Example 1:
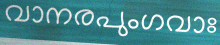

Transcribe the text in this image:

വാനരപുംഗവാഃ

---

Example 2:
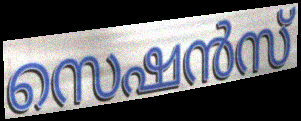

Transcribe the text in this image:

സെഷൻസ്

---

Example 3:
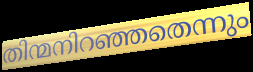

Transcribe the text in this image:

തിന്മനിറഞ്ഞതെന്നും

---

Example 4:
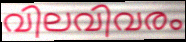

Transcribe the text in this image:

വിലവിവരം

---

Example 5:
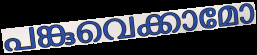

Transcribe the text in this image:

പങ്കുവെക്കാമോ